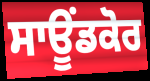
ਸਾਊਂਡਕੋਰ